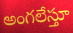
అంగలేస్తూ